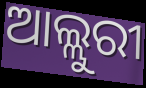
ଆଲ୍ଲୁରୀ